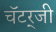
चॅटर्जी